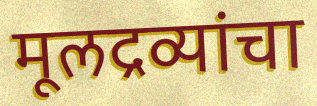
मूलद्रव्यांचा